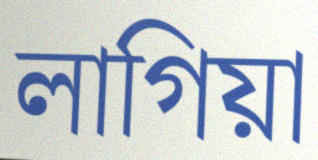
লাগিয়া